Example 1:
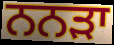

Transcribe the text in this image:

ਨਨੜਾ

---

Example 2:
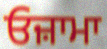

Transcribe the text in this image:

ਓਜ਼ਾਮਾ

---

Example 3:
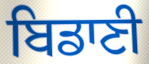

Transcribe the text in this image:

ਬਿਡਾਣੀ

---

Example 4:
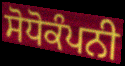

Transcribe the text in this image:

ਸੋਧੋਕੰਪਨੀ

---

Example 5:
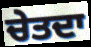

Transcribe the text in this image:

ਚੇਤਦਾ